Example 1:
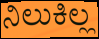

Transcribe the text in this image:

ನಿಲುಕಿಲ್ಲ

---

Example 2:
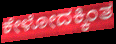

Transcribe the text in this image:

ಕೇಳೋದಕ್ಕಿಂತ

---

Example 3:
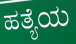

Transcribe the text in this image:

ಹತ್ಯೆಯ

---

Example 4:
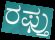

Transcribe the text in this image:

ರಫ್ತು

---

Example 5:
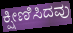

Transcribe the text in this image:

ಕ್ಷೀಣಿಸಿದವು